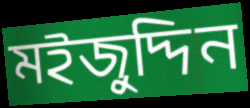
মইজুদ্দিন